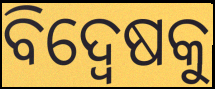
ବିଦ୍ବେଷକୁ